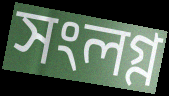
সংলগ্ন